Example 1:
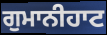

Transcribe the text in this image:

ਗੁਮਾਨੀਹਾਟ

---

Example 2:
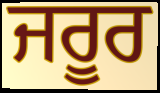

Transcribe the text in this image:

ਜਰੂਰ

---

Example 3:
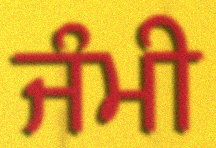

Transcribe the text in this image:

ਜੰਮੀ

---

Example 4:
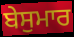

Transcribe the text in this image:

ਬੇਸੁਮਾਰ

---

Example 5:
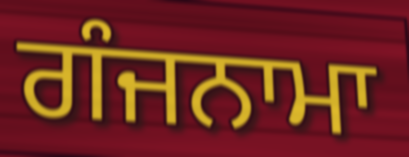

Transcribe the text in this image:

ਗੰਜਨਾਮਾ